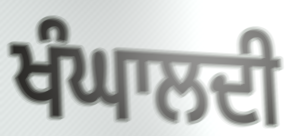
ਖੰਘਾਲਦੀ